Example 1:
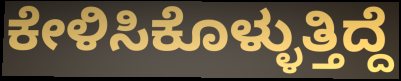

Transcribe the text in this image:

ಕೇಳಿಸಿಕೊಳ್ಳುತ್ತಿದ್ದೆ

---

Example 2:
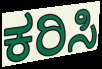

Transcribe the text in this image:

ಕರಿಸಿ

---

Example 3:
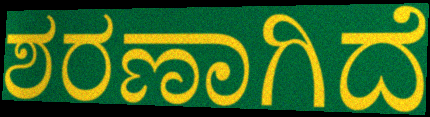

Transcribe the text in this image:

ಶರಣಾಗಿದೆ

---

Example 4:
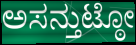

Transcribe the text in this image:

ಅಸನ್ತುಟ್ಠೋ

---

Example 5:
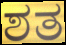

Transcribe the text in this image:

ಶತ